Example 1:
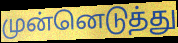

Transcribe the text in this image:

முன்னெடுத்து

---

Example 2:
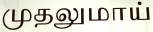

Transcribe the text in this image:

முதலுமாய்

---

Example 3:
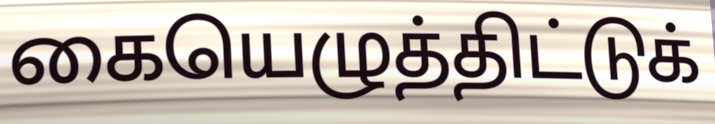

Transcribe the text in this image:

கையெழுத்திட்டுக்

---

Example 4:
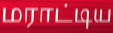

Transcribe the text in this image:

மராட்டிய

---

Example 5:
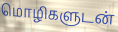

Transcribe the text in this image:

மொழிகளுடன்